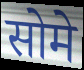
सोमे